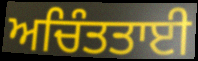
ਅਚਿੰਤਤਾਈ